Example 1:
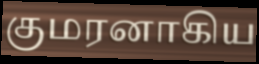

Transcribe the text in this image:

குமரனாகிய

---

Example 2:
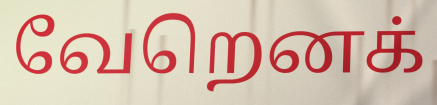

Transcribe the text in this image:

வேறெனக்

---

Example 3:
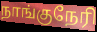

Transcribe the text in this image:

நாங்குநேரி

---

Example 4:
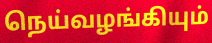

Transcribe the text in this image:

நெய்வழங்கியும்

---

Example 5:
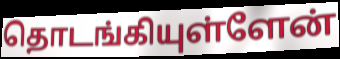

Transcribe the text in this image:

தொடங்கியுள்ளேன்